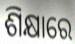
ଶିକ୍ଷାରେ